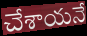
చేశాయనే